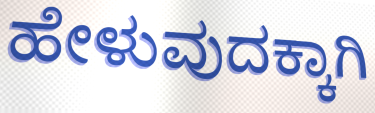
ಹೇಳುವುದಕ್ಕಾಗಿ